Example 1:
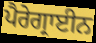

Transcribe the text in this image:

ਪੈਰੇਗ੍ਰਾਈਨ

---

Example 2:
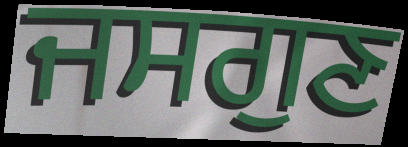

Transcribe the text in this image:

ਜਸਗੁਣ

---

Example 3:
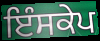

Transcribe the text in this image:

ਇੰਸਕੇਪ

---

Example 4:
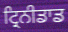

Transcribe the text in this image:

ਟ੍ਰਿਨੀਡਾਡ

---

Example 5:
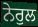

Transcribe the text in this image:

ਨੇਰੁਲ